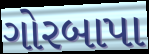
ગોરબાપા